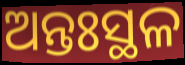
ଅନ୍ତଃସ୍ଥଳ